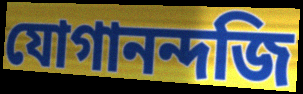
যোগানন্দজি